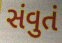
સંવુતં